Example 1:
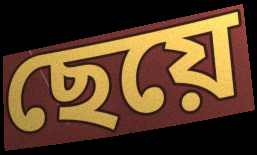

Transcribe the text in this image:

ছেয়ে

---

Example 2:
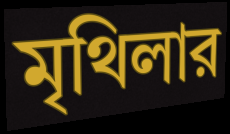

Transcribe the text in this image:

মৃথিলার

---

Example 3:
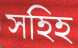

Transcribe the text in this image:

সহিহ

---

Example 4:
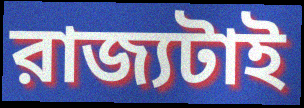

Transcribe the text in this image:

রাজ্যটাই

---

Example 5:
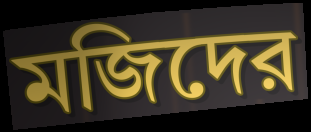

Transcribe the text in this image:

মজিদের